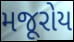
મજૂરોય